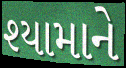
શ્યામાને